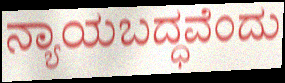
ನ್ಯಾಯಬದ್ಧವೆಂದು